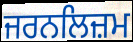
ਜਰਨਲਿਜ਼ਮ